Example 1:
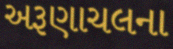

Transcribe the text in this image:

અરૂણાચલના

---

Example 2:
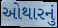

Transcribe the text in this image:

ઓથારનું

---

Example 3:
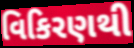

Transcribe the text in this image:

વિકિરણથી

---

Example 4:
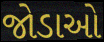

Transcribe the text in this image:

જોડાઓ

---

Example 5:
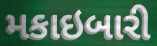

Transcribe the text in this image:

મકાઇબારી